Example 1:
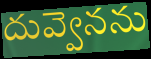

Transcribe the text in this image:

దువ్వెనను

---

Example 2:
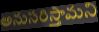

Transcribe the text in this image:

అనుసరిస్తామని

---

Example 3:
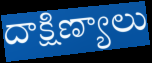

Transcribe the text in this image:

దాక్షిణ్యాలు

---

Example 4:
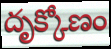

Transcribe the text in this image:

దృక్కోణం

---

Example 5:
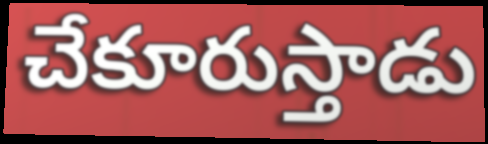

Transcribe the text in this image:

చేకూరుస్తాడు